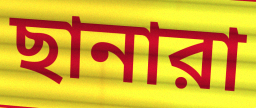
ছানারা